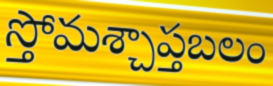
స్తోమశ్చాప్తబలం